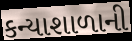
કન્યાશાળાની